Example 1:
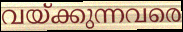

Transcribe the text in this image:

വയ്ക്കുന്നവരെ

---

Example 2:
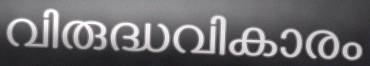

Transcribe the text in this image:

വിരുദ്ധവികാരം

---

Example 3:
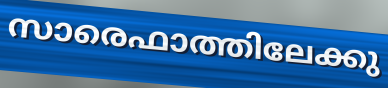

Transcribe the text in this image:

സാരെഫാത്തിലേക്കു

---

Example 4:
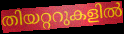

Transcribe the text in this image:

തിയറ്ററുകളിൽ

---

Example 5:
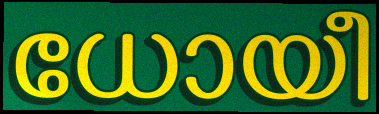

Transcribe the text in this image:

ധോയീ